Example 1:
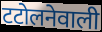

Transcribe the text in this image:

टटोलनेवाली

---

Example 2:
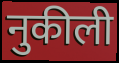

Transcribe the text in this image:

नुकीली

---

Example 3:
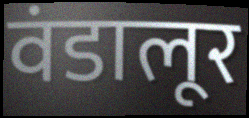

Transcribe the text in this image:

वंडालूर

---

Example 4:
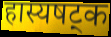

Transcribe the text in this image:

हास्यषट्क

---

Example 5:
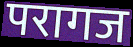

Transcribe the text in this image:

परागज